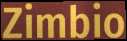
Zimbio